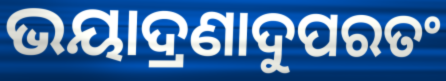
ଭୟାଦ୍ରଣାଦୁପରତଂ